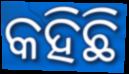
କହିଛି